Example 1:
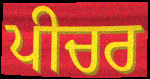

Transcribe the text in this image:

ਪੀਚਰ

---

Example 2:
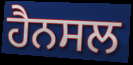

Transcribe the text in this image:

ਹੈਨਸਲ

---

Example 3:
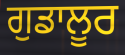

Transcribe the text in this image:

ਗੁਡਾਲੂਰ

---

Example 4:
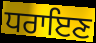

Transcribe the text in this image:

ਧਰਾਇਣ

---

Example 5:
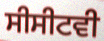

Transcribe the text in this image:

ਸੀਸੀਟਵੀ